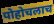
पोहोचलाच